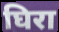
घिरा